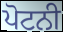
ਪੋਟਨੀ